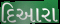
દિઆરા